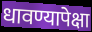
धावण्यापेक्षा